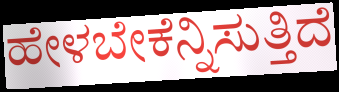
ಹೇಳಬೇಕೆನ್ನಿಸುತ್ತಿದೆ